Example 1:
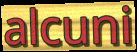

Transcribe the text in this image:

alcuni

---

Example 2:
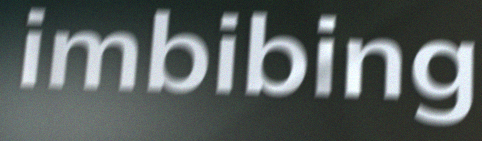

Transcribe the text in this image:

imbibing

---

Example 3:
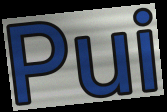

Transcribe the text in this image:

Pui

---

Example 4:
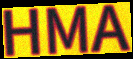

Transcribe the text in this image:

HMA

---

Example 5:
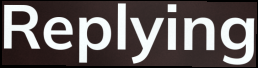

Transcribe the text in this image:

Replying